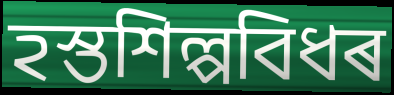
হস্তশিল্পবিধৰ